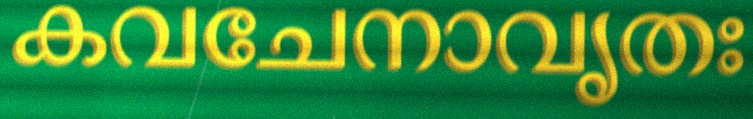
കവചേനാവൃതഃ